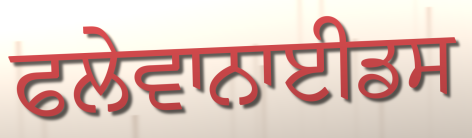
ਫਲੇਵਾਨਾਈਡਸ